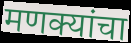
मणक्यांचा